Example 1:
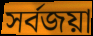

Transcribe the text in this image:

সর্বজয়া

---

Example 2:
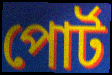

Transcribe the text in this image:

পোর্ট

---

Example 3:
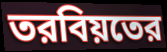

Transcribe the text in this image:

তরবিয়তের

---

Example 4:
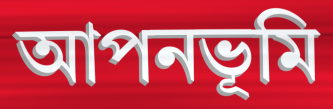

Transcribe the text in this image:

আপনভূমি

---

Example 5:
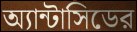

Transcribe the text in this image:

অ্যান্টাসিডের